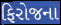
ફિરોજના